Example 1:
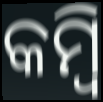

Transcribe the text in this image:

କମ୍ବି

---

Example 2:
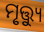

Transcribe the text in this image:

ମୃତ୍ତ୍ୟୁ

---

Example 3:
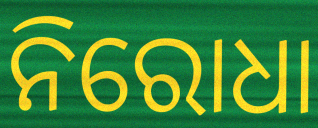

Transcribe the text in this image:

ନିରୋଧା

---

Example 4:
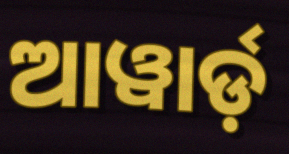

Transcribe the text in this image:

ଆୱାର୍ଡ଼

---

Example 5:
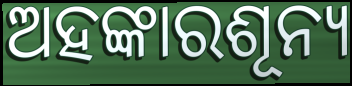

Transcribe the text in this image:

ଅହଙ୍କାରଶୂନ୍ୟ